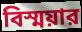
বিস্ময়ার